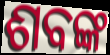
ଶବଙ୍କ